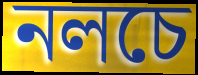
নলচে